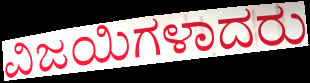
ವಿಜಯಿಗಳಾದರು